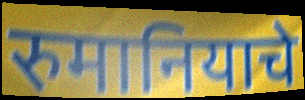
रुमानियाचे